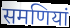
समणियां